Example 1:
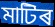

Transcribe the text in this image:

মাটিৰ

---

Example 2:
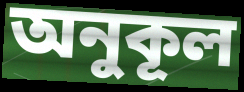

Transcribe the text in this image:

অনুকূল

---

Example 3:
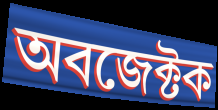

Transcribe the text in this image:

অবজেক্টক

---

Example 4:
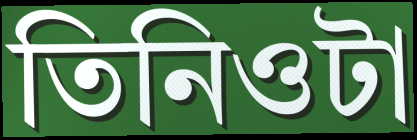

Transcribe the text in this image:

তিনিওটা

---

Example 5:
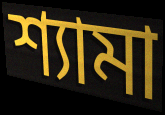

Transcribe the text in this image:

শ্যামা